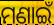
ମଣାଇଁ